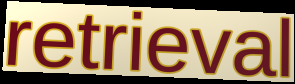
retrieval